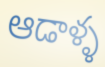
ఆడాళ్ళ